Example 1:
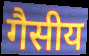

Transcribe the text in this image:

गैसीय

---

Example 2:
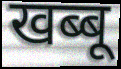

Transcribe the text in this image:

खब्बू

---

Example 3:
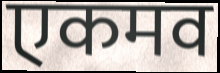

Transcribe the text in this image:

एकमव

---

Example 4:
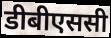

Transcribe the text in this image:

डीबीएससी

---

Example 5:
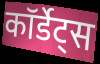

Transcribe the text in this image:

कॉर्डेट्स